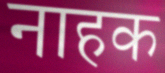
नाहक